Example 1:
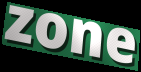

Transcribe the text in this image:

zone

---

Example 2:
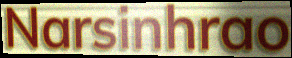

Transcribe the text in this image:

Narsinhrao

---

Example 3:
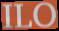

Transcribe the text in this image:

ILO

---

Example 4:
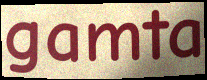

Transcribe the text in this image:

gamta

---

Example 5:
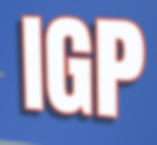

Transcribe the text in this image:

IGP